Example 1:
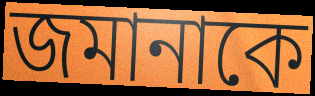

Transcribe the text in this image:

জমানাকে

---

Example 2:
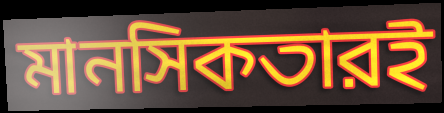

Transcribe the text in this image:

মানসিকতারই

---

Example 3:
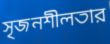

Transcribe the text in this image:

সৃজনশীলতার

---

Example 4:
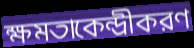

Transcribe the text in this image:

ক্ষমতাকেন্দ্রীকরণ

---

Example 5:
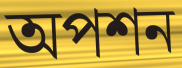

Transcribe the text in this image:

অপশন